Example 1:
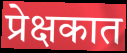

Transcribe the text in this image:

प्रेक्षकात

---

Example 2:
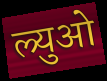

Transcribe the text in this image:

ल्युओ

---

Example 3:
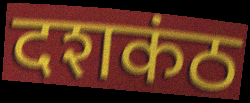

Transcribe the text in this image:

दशकंठ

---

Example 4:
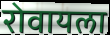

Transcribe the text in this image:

रोवायला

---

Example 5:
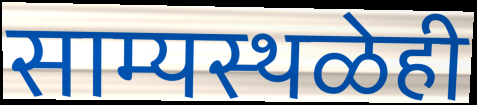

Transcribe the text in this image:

साम्यस्थळेही